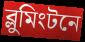
ব্লুমিংটনে